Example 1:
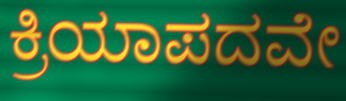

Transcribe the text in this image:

ಕ್ರಿಯಾಪದವೇ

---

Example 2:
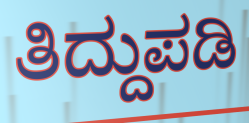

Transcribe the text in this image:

ತಿದ್ದುಪಡಿ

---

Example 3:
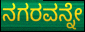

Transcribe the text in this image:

ನಗರವನ್ನೇ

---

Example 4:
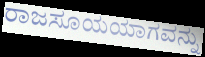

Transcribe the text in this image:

ರಾಜಸೂಯಯಾಗವನ್ನು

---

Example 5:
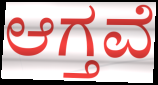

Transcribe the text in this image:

ಆಗ್ತವೆ